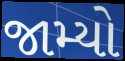
જામ્યો